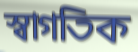
স্বাগতিক